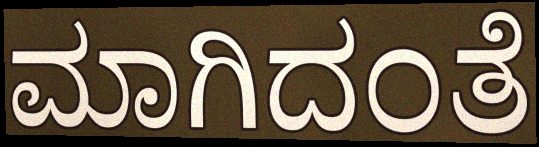
ಮಾಗಿದಂತೆ